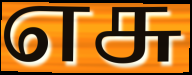
எசு